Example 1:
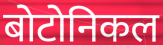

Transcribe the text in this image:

बोटोनिकल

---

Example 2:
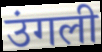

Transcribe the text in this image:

उंगली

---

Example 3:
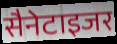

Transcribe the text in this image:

सैनेटाइजर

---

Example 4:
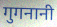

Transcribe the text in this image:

गुगनानी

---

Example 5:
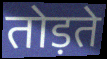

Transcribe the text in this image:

तोड़ते